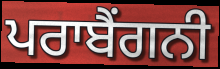
ਪਰਾਬੈਂਗਨੀ